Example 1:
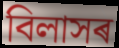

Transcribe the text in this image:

বিলাসৰ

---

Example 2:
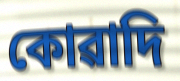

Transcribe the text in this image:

কোৱাদি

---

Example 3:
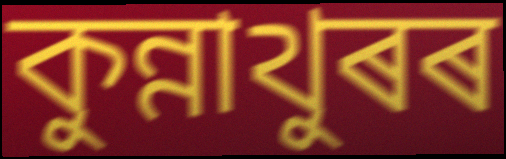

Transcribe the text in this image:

কুন্নাথুৰৰ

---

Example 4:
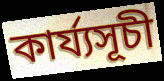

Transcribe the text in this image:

কাৰ্য্যসূচী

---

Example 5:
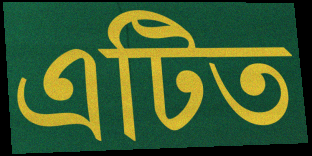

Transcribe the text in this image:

এটিত